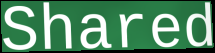
Shared